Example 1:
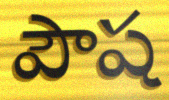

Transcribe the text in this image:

పౌష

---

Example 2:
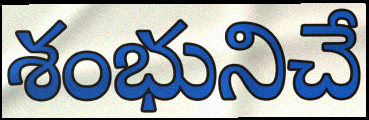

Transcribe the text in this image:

శంభునిచే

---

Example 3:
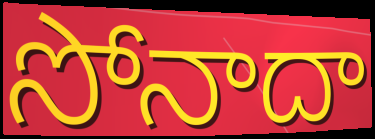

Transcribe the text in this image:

సోనాదా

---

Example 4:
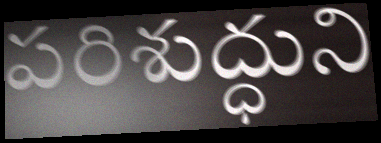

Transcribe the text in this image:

పరిశుద్ధుని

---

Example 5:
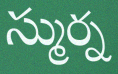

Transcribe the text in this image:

స్ముర్న